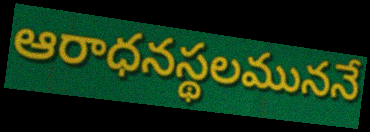
ఆరాధనస్థలముననే